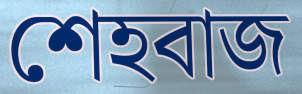
শেহবাজ